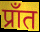
प्राँत